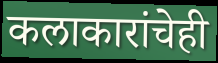
कलाकारांचेही